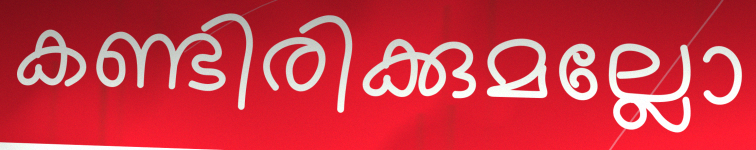
കണ്ടിരിക്കുമല്ലോ